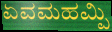
ಏವಮಹಮ್ಪಿ